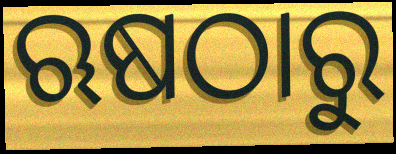
ଋଷଠାରୁ